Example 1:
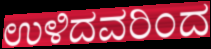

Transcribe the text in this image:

ಉಳಿದವರಿಂದ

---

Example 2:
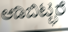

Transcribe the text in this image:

ಆಡಿಬಿಟ್ಟರೆ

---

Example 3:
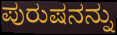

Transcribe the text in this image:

ಪುರುಷನನ್ನು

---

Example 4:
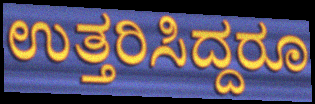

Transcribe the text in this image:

ಉತ್ತರಿಸಿದ್ದರೂ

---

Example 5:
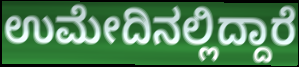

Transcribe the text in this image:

ಉಮೇದಿನಲ್ಲಿದ್ದಾರೆ